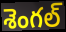
శెంగల్